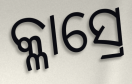
କ୍ଳାସ୍ରେ